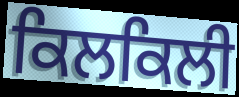
ਕਿਲਕਿਲੀ